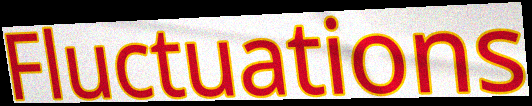
Fluctuations